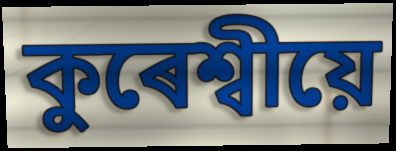
কুৰেশ্বীয়ে